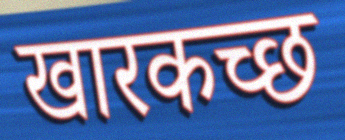
खारकच्छ